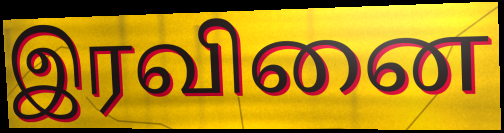
இரவினை